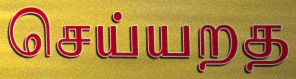
செய்யறத